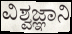
ವಿಶ್ವಜ್ಞಾನಿ